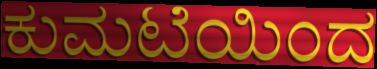
ಕುಮಟೆಯಿಂದ